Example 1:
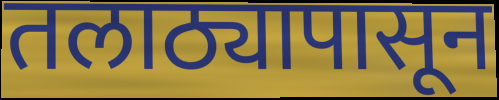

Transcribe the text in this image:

तलाठ्यापासून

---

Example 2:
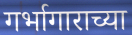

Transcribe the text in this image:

गर्भागाराच्या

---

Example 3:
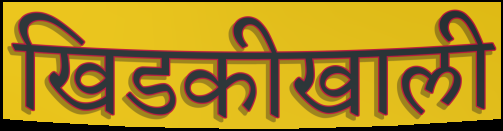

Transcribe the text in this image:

खिडकीखाली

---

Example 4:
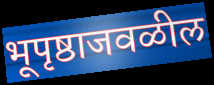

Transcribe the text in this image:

भूपृष्ठाजवळील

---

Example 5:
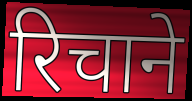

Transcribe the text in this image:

रिचाने